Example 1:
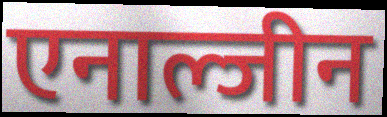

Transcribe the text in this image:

एनाल्जीन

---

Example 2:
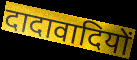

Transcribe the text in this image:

दादावादियों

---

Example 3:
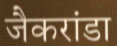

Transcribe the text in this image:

जैकरांडा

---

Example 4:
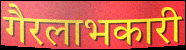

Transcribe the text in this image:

गैरलाभकारी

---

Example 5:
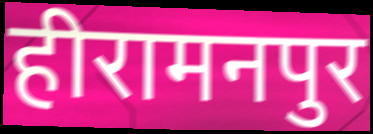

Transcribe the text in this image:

हीरामनपुर